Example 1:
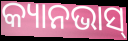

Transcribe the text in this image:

କ୍ୟାନଭାସ୍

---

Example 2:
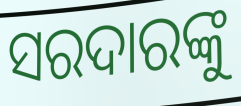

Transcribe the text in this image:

ସରଦାରଙ୍କୁ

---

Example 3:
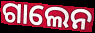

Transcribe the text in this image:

ଗାଲେନ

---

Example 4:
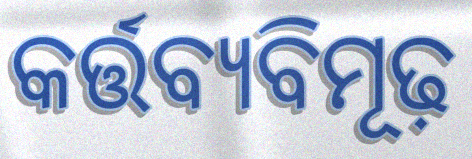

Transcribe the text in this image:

କର୍ତ୍ତବ୍ୟବିମୂଢ଼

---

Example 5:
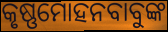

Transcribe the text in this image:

କୃଷ୍ଣମୋହନବାବୁଙ୍କ